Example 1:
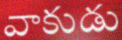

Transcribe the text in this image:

వాకుడు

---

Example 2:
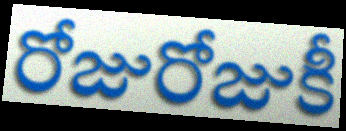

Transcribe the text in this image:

రోజురోజుకీ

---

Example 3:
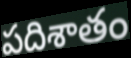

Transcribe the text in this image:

పదిశాతం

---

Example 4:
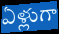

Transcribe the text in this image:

ఏళ్లుగా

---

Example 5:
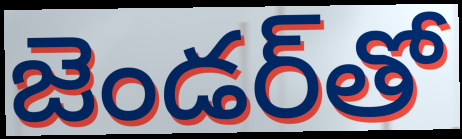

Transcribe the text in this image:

జెండర్‌తో